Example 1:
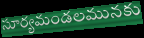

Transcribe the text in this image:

సూర్యమండలమునకు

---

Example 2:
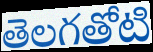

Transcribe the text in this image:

తెలగతోటి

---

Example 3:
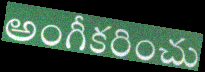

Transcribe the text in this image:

అంగీకరించు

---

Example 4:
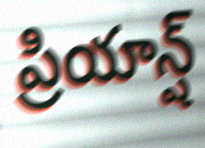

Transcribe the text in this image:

ప్రియాన్ష్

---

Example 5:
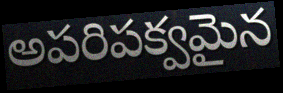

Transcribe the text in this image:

అపరిపక్వమైన